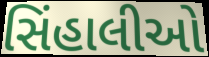
સિંહાલીઓ